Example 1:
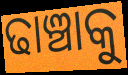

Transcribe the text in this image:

ଢାଞ୍ଚାକୁ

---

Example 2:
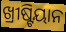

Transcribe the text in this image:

ଖ୍ରୀଷ୍ଟିୟାନ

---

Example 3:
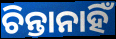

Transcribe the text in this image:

ଚିନ୍ତାନାହିଁ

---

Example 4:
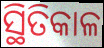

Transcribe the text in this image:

ସ୍ଥିତିକାଳ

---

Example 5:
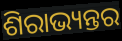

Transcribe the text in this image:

ଶିରାଭ୍ୟନ୍ତର